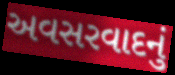
અવસરવાદનું